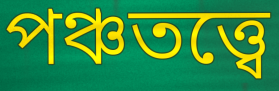
পঞ্চতত্ত্বে